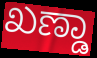
ಖಣ್ಡಾ